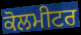
ਕੋਲਮੀਟਰ